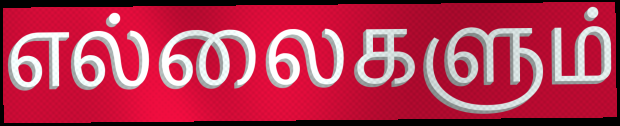
எல்லைகளும்